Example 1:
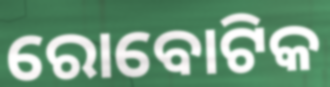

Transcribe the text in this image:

ରୋବୋଟିକ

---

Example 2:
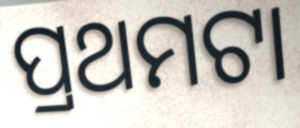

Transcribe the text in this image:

ପ୍ରଥମଟା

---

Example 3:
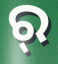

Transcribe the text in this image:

ର୍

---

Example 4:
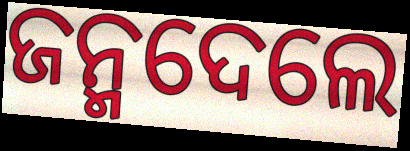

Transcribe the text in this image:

ଜନ୍ମଦେଲେ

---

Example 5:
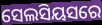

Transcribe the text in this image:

ସେଲସିୟସରେ